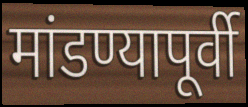
मांडण्यापूर्वी